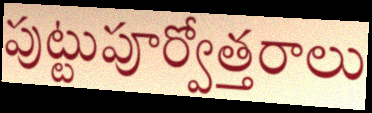
పుట్టుపూర్వోత్తరాలు